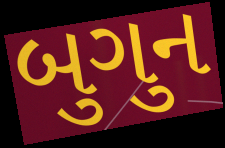
બુગુન